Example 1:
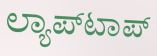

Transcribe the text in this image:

ಲ್ಯಾಪ್‌ಟಾಪ್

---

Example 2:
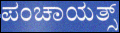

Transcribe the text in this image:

ಪಂಚಾಯತ್ಸ್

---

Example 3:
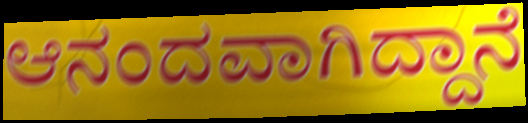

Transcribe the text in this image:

ಆನಂದವಾಗಿದ್ದಾನೆ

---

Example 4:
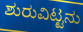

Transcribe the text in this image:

ಶುರುವಿಟ್ಟನು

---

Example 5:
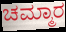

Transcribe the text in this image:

ಚಮ್ಮಾರ